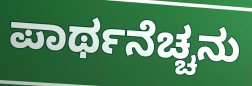
ಪಾರ್ಥನೆಚ್ಚನು